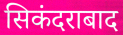
सिकंदराबाद